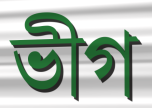
ভীগ